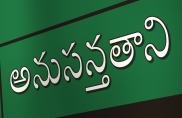
అనుసన్తతాని